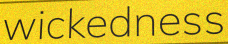
wickedness